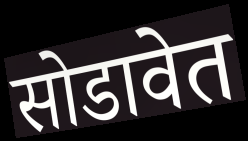
सोडावेत